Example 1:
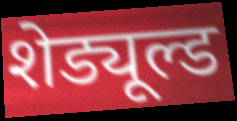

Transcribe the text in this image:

शेड्यूल्ड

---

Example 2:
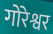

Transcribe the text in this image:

गोरेश्वर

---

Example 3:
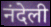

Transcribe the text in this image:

नंदेली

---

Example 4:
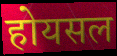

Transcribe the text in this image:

होयसल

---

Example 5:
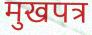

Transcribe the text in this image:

मुखपत्र